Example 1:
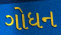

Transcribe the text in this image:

ગોધન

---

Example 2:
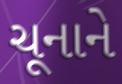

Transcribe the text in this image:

ચૂનાને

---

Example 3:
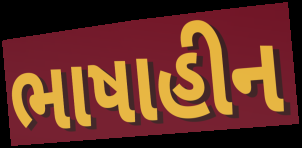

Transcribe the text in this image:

ભાષાહીન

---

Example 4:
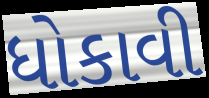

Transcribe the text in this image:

ધોકાવી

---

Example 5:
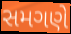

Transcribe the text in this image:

સમગણે